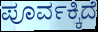
ಪೂರ್ವಕ್ಕಿದೆ